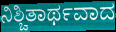
ನಿಶ್ಚಿತಾರ್ಥವಾದ